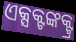
ଏକ୍ସକ୍ଟଙ୍କକ୍ଟ୍ର